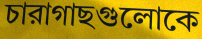
চারাগাছগুলোকে